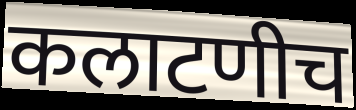
कलाटणीच